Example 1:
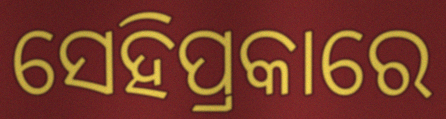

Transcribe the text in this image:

ସେହିପ୍ରକାରେ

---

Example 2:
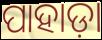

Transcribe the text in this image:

ପାହାଡ଼ା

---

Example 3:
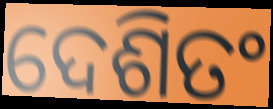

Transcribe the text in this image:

ଦେଶିତଂ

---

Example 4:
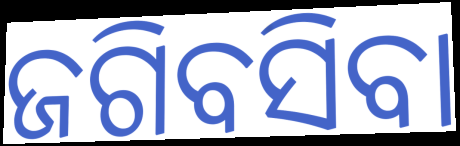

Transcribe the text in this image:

ଜଗିବସିବା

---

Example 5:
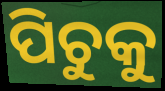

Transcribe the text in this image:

ପିଚୁକୁ